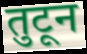
तुटून